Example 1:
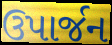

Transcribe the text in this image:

ઉપાર્જન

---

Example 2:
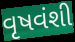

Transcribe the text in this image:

વૃષવંશી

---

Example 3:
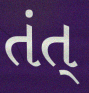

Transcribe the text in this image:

તંત્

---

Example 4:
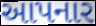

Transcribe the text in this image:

આપનાર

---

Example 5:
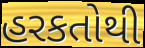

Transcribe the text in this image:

હરકતોથી